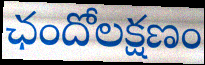
ఛందోలక్షణం